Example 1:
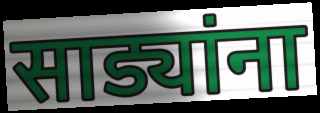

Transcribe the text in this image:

साड्यांना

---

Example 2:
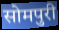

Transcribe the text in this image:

सोमपुरी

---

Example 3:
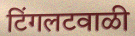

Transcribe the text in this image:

टिंगलटवाळी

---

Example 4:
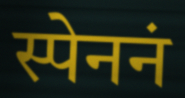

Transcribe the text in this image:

स्पेननं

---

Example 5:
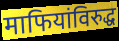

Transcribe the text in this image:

माफियांविरुद्ध